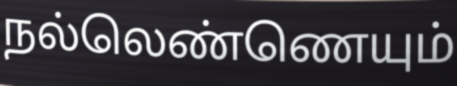
நல்லெண்ணெயும்